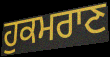
ਹੁਕਮਰਾਣ